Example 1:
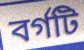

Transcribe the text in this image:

বর্গটি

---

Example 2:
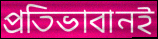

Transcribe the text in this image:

প্রতিভাবানই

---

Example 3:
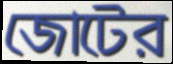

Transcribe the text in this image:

জোটের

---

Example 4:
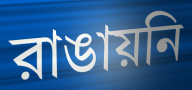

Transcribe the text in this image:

রাঙায়নি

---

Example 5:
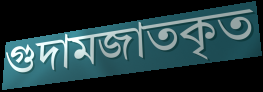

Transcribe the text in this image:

গুদামজাতকৃত